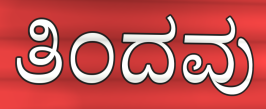
ತಿಂದವು